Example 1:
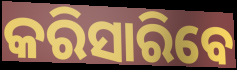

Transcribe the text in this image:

କରିସାରିବେ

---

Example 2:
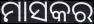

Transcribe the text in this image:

ମାସକର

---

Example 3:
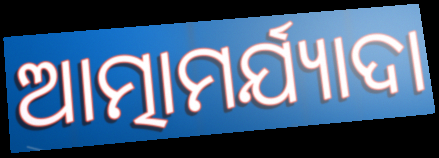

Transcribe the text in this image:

ଆତ୍ମାମର୍ଯ୍ୟାଦା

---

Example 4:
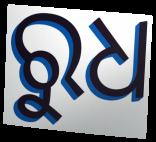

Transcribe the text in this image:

ରୁଧ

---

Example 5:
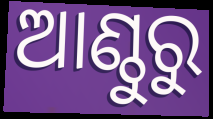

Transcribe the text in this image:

ଆଣ୍ଠୁରୁ